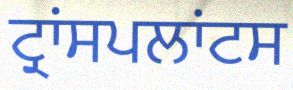
ਟ੍ਰਾਂਸਪਲਾਂਟਸ